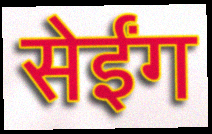
सेईंग